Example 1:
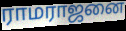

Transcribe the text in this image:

ராமராஜனை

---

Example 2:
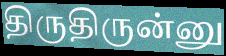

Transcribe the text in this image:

திருதிருன்னு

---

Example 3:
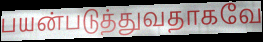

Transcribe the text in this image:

பயன்படுத்துவதாகவே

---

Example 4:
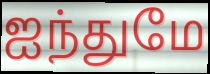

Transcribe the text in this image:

ஐந்துமே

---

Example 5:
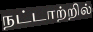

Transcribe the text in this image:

நட்டாற்றில்